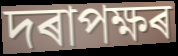
দৰাপক্ষৰ